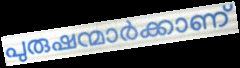
പുരുഷന്മാർക്കാണ്